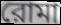
রোমা